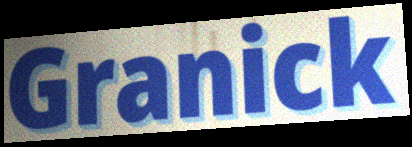
Granick